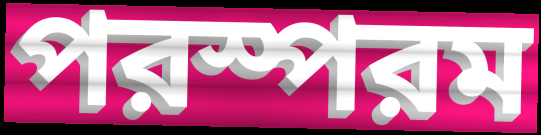
পরস্পরম